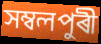
সম্বলপুৰী